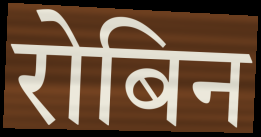
रोबिन